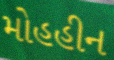
મોહહીન